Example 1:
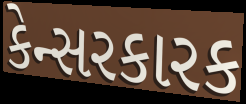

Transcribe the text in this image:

કેન્સરકારક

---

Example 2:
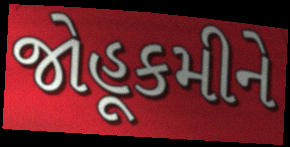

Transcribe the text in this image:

જોહૂકમીને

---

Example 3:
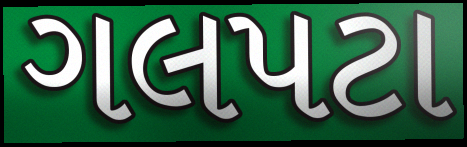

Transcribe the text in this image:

ગલપટા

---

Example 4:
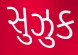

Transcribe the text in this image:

સુઝુક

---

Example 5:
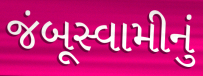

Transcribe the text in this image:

જંબૂસ્વામીનું